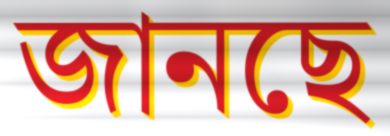
জানছে